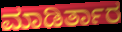
ಮಾಡಿರ್ತಾರ